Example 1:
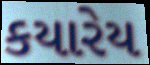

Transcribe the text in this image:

કયારેય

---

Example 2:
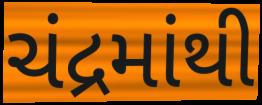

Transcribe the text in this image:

ચંદ્રમાંથી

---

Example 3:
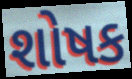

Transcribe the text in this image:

શોષક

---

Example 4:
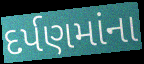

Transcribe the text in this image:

દર્પણમાંના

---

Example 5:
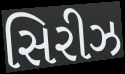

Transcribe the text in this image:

સિરીઝ